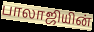
பாலாஜியின்